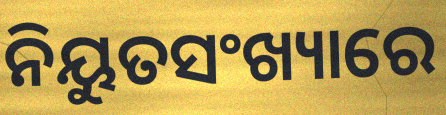
ନିୟୁତସଂଖ୍ୟାରେ